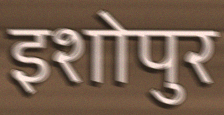
इशोपुर